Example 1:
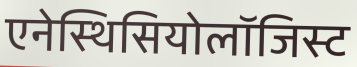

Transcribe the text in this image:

एनेस्थिसियोलॉजिस्ट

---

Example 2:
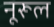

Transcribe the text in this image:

नूरूल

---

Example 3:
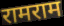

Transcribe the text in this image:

रामराम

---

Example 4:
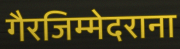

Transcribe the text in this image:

गैरजिम्मेदराना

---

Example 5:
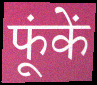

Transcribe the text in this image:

फूंकें